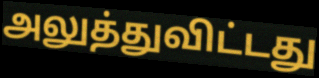
அலுத்துவிட்டது